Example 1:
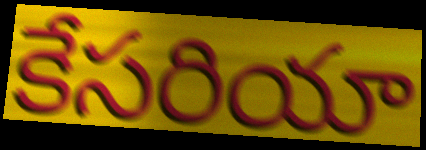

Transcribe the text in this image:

కేసరియా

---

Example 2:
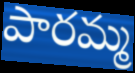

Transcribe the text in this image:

పారమ్మ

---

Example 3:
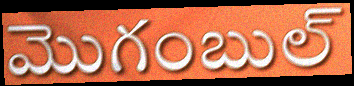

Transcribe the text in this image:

మొగంబుల్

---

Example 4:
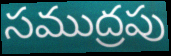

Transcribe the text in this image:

సముద్రపు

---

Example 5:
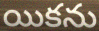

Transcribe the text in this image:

యికను